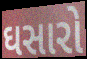
ઘસારો